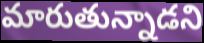
మారుతున్నాడని